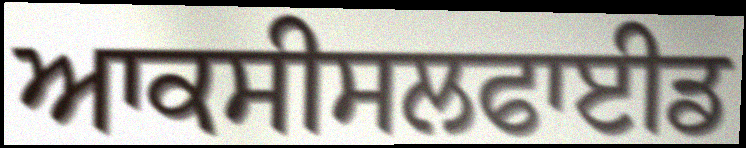
ਆਕਸੀਸਲਫਾਈਡ